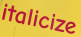
italicize